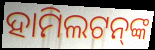
ହାମିଲଟନ୍‍ଙ୍କ